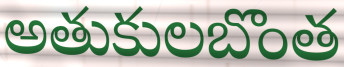
అతుకులబొంత